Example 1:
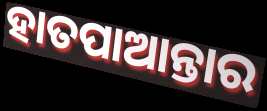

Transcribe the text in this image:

ହାତପାଆନ୍ତାର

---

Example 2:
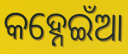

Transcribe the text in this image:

କହ୍ନେଇଁଆ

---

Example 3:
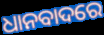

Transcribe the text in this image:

ଧାନବାଦରେ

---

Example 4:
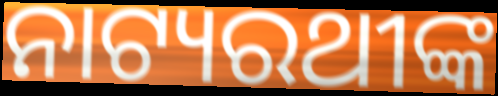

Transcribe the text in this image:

ନାଟ୍ୟରଥୀଙ୍କ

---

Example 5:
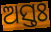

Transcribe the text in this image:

ଅସ୍ତଃ